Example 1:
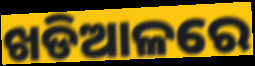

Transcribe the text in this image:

ଖଡିଆଳରେ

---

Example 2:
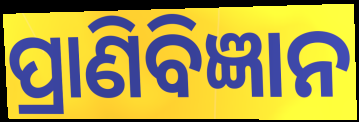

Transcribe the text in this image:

ପ୍ରାଣିବିଜ୍ଞାନ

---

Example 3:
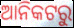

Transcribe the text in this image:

ଆନିକଟରୁ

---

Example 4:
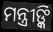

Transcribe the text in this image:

ମନ୍ତ୍ରୀଙ୍କି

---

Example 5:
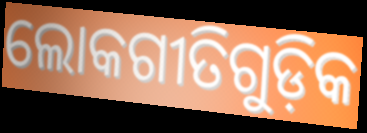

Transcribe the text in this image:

ଲୋକଗୀତିଗୁଡ଼ିକ